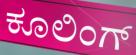
ಕೂಲಿಂಗ್